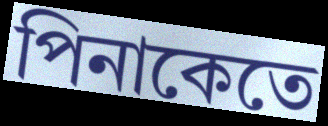
পিনাকেতে